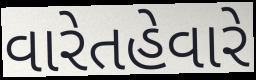
વારેતહેવારે